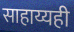
साहाय्यही